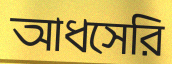
আধসেরি